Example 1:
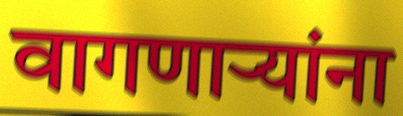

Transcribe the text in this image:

वागणार्‍यांना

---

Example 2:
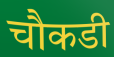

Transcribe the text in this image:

चौकडी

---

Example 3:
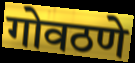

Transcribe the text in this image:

गोवठणे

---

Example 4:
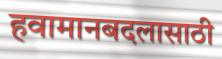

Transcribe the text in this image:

हवामानबदलासाठी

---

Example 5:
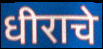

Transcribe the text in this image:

धीराचे